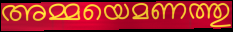
അമ്മയെമണത്തു